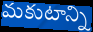
మకుటాన్ని